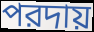
পরদায়